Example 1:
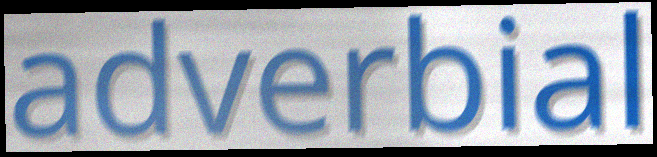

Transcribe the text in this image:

adverbial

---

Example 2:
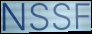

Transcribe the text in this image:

NSSF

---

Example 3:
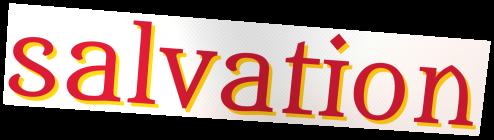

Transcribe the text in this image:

salvation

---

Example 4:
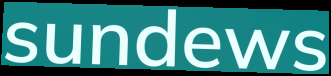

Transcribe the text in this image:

sundews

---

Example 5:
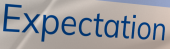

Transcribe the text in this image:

Expectation